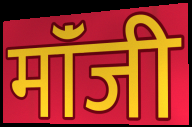
मॉंजी